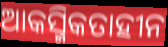
ଆକସ୍ମିକତାହୀନ